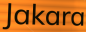
Jakara